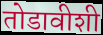
तोडावीशी